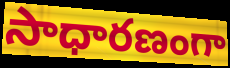
సాధారణంగా